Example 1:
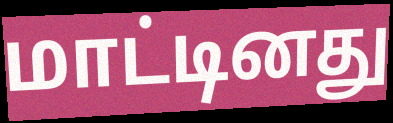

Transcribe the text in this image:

மாட்டினது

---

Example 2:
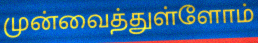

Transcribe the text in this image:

முன்வைத்துள்ளோம்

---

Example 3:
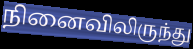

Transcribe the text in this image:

நினைவிலிருந்து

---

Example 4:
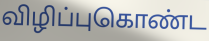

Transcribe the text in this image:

விழிப்புகொண்ட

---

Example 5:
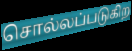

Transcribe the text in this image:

சொல்லப்படுகிற